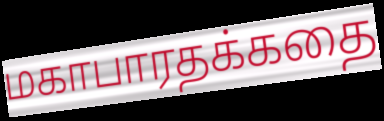
மகாபாரதக்கதை